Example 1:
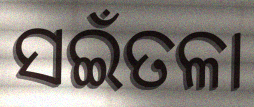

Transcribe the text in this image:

ସଇଁତଳା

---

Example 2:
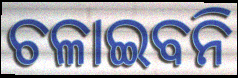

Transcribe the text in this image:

ଚଳାଇବନି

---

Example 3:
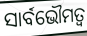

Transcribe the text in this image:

ସାର୍ବଭୌମତ୍ବ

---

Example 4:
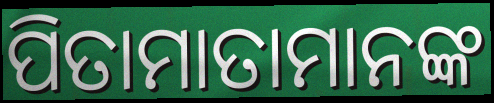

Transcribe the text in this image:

ପିତାମାତାମାନଙ୍କ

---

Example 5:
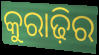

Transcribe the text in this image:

କୁରାଢ଼ିର